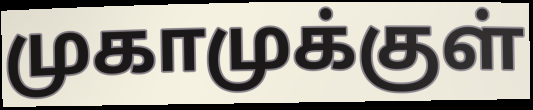
முகாமுக்குள்